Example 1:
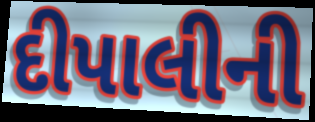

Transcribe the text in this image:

દીપાલીની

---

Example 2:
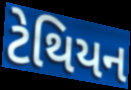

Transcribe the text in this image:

ટેથિયન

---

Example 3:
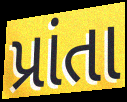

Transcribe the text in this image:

પ્રાંતા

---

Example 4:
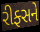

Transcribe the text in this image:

રીફ્સને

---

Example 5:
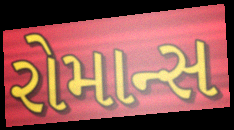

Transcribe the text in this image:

રોમાન્સ